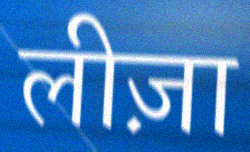
लीज़ा